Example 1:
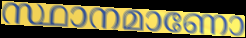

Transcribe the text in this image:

സ്ഥാനമാണോ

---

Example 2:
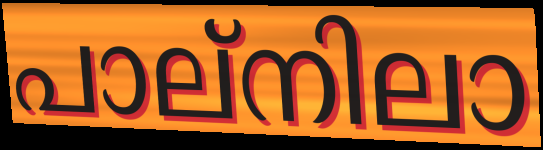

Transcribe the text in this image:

പാല്നിലാ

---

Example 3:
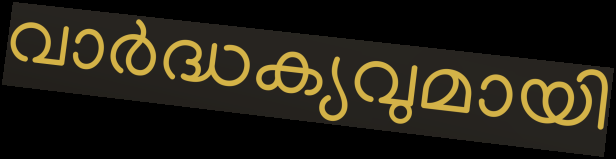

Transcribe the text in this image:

വാർദ്ധക്യവുമായി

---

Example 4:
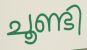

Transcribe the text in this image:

ചൂണ്ടി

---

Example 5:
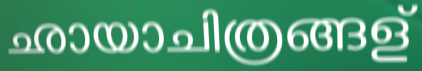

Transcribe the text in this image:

ഛായാചിത്രങ്ങള്